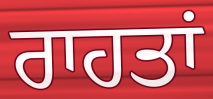
ਰਾਹਤਾਂ